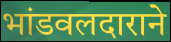
भांडवलदाराने